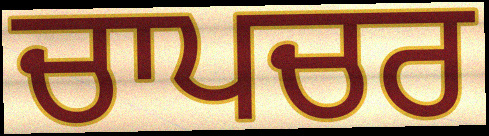
ਚਾਪਚਰ